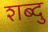
शब्दु